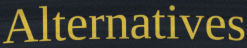
Alternatives